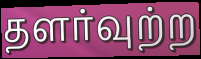
தளர்வுற்ற